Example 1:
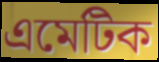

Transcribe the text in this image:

এমেটিক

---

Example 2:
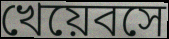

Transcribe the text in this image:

খেয়েবসে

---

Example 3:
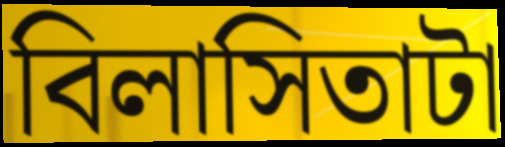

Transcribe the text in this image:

বিলাসিতাটা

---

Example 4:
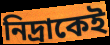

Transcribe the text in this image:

নিদ্রাকেই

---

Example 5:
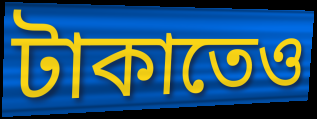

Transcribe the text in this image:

টাকাতেও